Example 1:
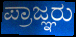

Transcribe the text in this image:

ಪ್ರಾಜ್ಞರು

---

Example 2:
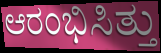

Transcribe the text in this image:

ಆರಂಭಿಸಿತ್ತು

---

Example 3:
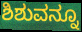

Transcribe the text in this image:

ಶಿಶುವನ್ನೂ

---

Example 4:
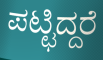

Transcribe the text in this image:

ಪಟ್ಟಿದ್ದರೆ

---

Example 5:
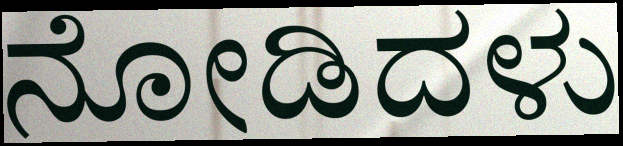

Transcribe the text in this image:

ನೋಡಿದಳು